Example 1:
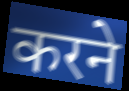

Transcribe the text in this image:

करने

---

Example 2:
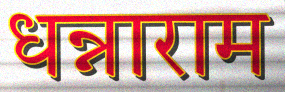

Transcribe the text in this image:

धन्नाराम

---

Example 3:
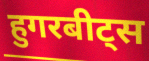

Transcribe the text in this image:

हुगरबीट्स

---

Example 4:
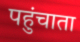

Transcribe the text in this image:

पहुंचाता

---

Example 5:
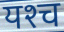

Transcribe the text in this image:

यश्च